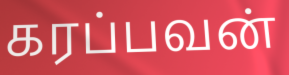
கரப்பவன்